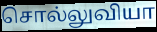
சொல்லுவியா